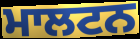
ਮਾਲਟਨ